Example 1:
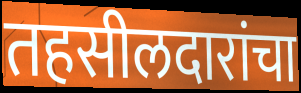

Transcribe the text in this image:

तहसीलदारांचा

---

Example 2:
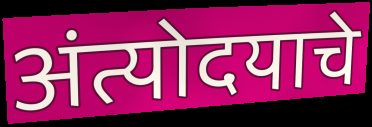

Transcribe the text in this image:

अंत्योदयाचे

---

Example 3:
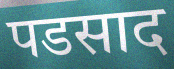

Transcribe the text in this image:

पडसाद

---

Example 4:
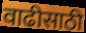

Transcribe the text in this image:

वाढीसाठी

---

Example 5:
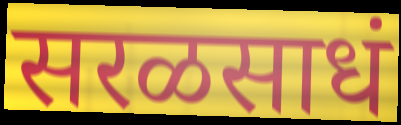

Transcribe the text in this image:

सरळसाधं